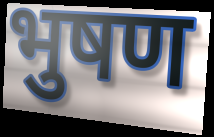
भुषण